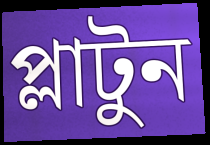
প্লাটুন